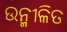
ଉନ୍ମୀଳିତ